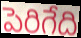
పెరిగేది